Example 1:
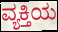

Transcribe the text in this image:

ವ್ಯಕ್ತಿಯ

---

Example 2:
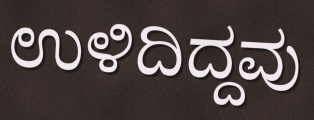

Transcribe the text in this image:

ಉಳಿದಿದ್ದವು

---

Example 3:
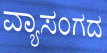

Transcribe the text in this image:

ವ್ಯಾಸಂಗದ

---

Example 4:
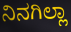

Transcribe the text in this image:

ನಿನಗಿಲ್ಲಾ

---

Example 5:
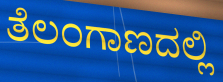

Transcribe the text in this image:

ತೆಲಂಗಾಣದಲ್ಲಿ